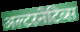
अल्टरनेटिव्स